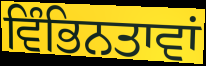
ਵਿੰਭਿਨਤਾਵਾਂ